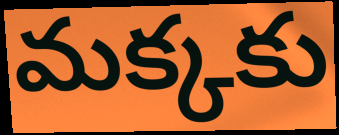
మక్కకు